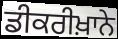
ਡੀਕਰੀਖ਼ਾਨੇ